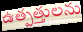
ఉత్పత్తులను